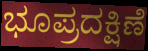
ಭೂಪ್ರದಕ್ಷಿಣೆ